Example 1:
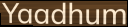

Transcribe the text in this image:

Yaadhum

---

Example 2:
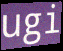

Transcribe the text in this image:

ugi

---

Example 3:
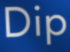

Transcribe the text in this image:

Dip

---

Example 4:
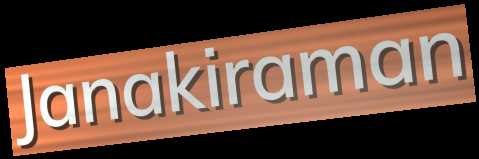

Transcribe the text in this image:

Janakiraman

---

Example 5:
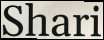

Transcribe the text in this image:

Shari